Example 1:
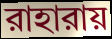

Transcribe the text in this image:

রাহারায়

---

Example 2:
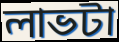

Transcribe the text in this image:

লাভটা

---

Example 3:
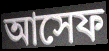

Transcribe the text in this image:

আসেফ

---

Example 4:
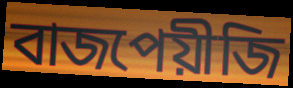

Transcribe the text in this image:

বাজপেয়ীজি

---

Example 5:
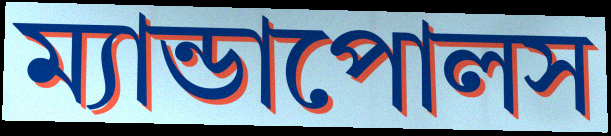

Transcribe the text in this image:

ম্যান্ডাপোলস